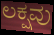
ಲಕ್ಷವು